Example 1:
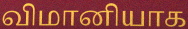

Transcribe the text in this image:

விமானியாக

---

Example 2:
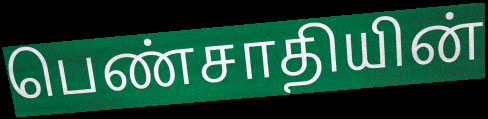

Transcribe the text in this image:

பெண்சாதியின்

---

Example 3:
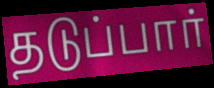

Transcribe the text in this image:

தடுப்பார்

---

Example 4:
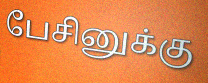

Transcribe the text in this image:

பேசினுக்கு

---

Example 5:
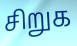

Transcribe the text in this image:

சிறுக